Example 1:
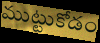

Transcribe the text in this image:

ముట్టుకోడం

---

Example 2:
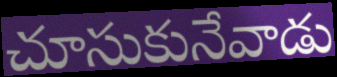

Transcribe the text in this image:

చూసుకునేవాడు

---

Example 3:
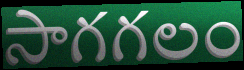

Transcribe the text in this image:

సాగగలం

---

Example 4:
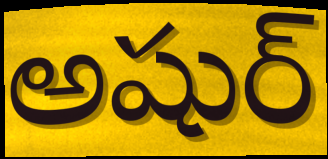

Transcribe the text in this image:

అషుర్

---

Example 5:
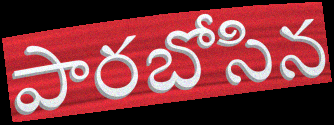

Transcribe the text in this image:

పారబోసిన